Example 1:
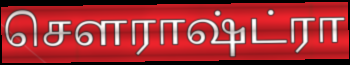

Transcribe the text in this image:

சௌராஷ்ட்ரா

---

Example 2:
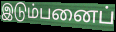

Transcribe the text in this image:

இடும்பனைப்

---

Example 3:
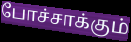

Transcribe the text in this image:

போச்சாக்கும்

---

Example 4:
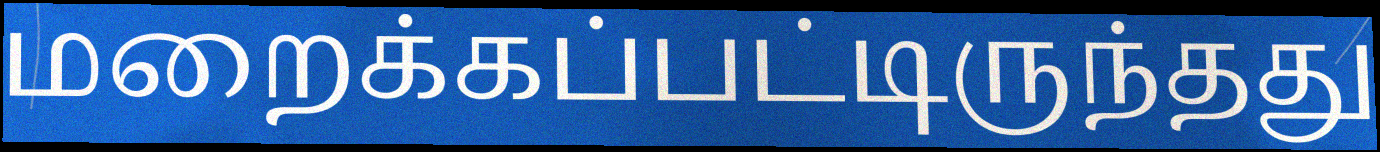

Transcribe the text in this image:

மறைக்கப்பட்டிருந்தது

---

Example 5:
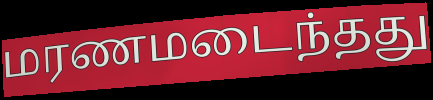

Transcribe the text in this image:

மரணமடைந்தது